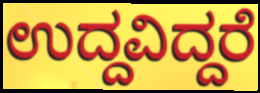
ಉದ್ದವಿದ್ದರೆ